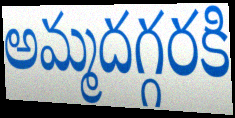
అమ్మదగ్గరకి